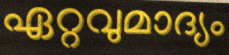
ഏറ്റവുമാദ്യം